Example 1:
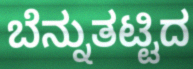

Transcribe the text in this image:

ಬೆನ್ನುತಟ್ಟಿದ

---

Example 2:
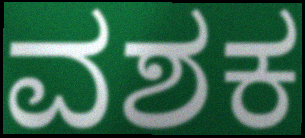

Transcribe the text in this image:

ವಶಕ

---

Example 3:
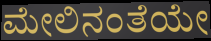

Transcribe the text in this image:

ಮೇಲಿನಂತೆಯೇ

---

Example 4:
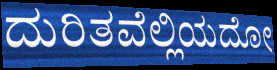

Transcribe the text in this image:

ದುರಿತವೆಲ್ಲಿಯದೋ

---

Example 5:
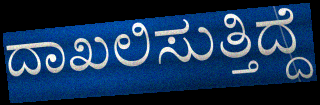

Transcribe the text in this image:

ದಾಖಲಿಸುತ್ತಿದ್ದೆ